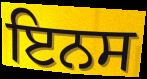
ਇਨਸ